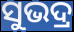
ସୁଭଦ୍ର